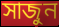
সাজুন